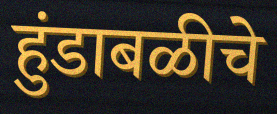
हुंडाबळीचे